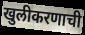
खुलीकरणाची